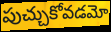
పుచ్చుకోవడమో